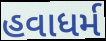
હવાધર્મ